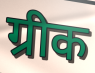
ग्रीक